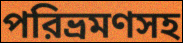
পরিভ্রমণসহ